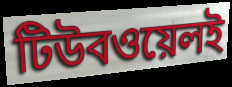
টিউবওয়েলই